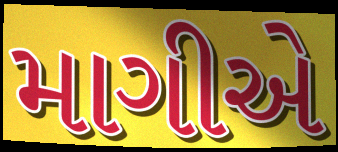
માગીએ